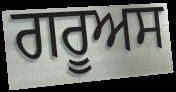
ਗਰੂਅਸ